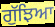
ਗੁੱਝਿਆ